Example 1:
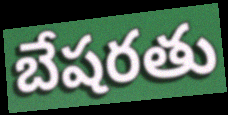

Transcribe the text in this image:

బేషరతు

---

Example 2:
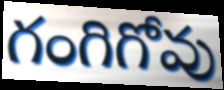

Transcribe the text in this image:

గంగిగోవు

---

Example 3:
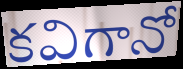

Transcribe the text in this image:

కవిగానో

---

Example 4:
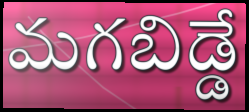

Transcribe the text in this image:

మగబిడ్డే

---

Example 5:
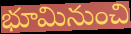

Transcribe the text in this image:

భూమినుంచి